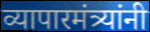
व्यापारमंत्र्यांनी